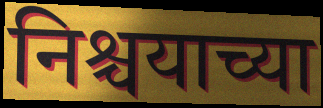
निश्चयाच्या